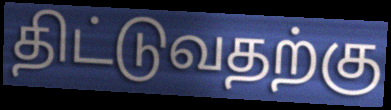
திட்டுவதற்கு